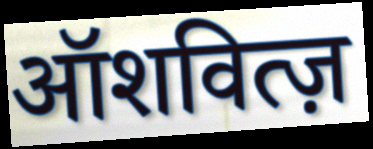
ऑशवित्ज़